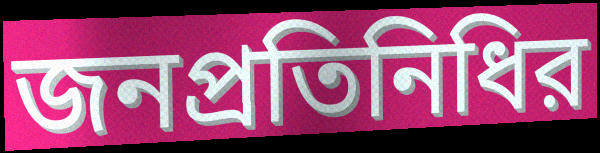
জনপ্রতিনিধির